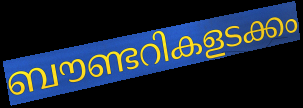
ബൗണ്ടറികളടക്കം